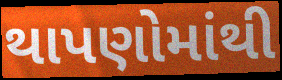
થાપણોમાંથી